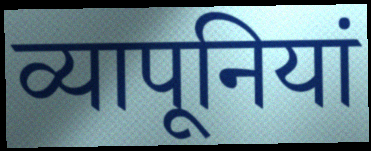
व्यापूनियां